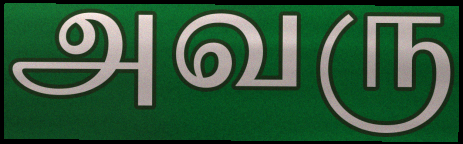
அவரு